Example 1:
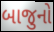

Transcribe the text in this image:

બાજુનો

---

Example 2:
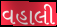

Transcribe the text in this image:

વહાલી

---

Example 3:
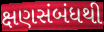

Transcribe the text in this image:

ક્ષણસંબંધથી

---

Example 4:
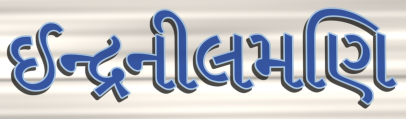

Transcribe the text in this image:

ઈન્દ્રનીલમણિ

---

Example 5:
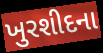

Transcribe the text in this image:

ખુરશીદના